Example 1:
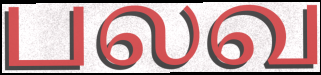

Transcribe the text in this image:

பலவ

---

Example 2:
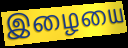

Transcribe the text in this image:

இழையை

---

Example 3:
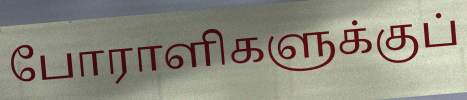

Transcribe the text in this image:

போராளிகளுக்குப்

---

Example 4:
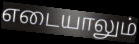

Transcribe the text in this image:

எடையாலும்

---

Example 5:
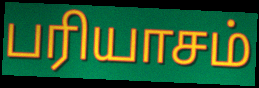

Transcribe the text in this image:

பரியாசம்